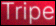
Tripe